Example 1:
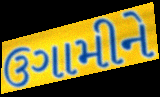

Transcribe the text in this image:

ઉગામીને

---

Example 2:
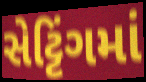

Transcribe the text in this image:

સેટ્ટિંગમાં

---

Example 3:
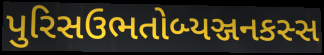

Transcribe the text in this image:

પુરિસઉભતોબ્યઞ્જનકસ્સ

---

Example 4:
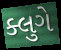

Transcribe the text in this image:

ક્લુગે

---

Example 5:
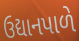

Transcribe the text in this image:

ઉદ્યાનપાળે